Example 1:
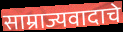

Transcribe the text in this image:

साम्राज्यवादाचे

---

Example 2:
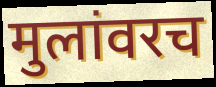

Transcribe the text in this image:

मुलांवरच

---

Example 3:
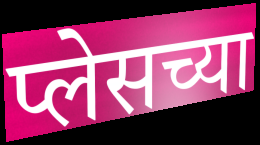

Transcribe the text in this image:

प्लेसच्या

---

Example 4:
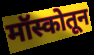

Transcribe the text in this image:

मॉस्कोतून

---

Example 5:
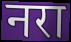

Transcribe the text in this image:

नरा